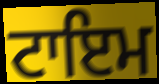
ਟਾਇਮ